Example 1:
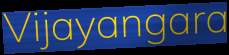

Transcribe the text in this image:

Vijayangara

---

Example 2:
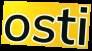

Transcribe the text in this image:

osti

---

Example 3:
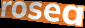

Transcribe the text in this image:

rosea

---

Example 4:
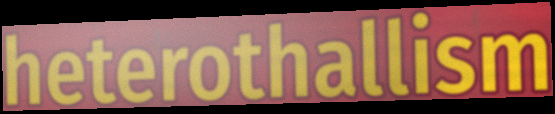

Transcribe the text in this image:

heterothallism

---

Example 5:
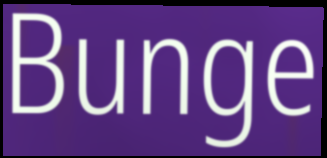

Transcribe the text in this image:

Bunge